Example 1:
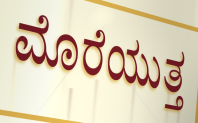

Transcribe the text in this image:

ಮೊರೆಯುತ್ತ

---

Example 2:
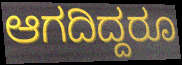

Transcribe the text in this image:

ಆಗದಿದ್ದರೂ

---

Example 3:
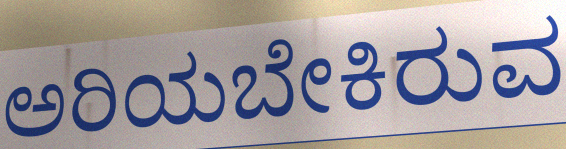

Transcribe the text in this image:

ಅರಿಯಬೇಕಿರುವ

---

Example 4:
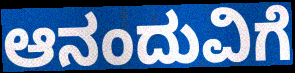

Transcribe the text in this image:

ಆನಂದುವಿಗೆ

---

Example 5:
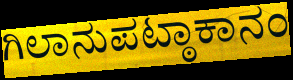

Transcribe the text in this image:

ಗಿಲಾನುಪಟ್ಠಾಕಾನಂ